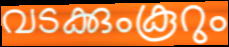
വടക്കുംകൂറും